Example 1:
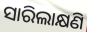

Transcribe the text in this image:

ସାରିଲାକ୍ଷଣି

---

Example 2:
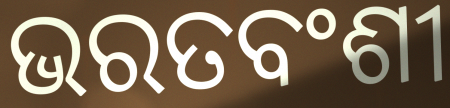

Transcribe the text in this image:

ଭରତବଂଶୀ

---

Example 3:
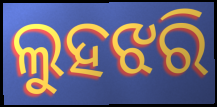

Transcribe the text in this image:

ଲୁହଝରି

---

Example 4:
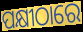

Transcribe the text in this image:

ପକ୍ଷୀଠାରେ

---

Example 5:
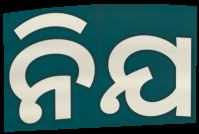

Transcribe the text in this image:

ନିଯ